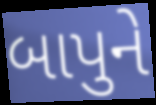
બાપુને